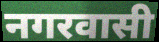
नगरवासी